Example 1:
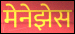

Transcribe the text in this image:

मेनेझेस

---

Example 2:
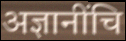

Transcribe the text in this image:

अज्ञानींचि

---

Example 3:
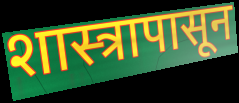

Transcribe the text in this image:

शास्त्रापासून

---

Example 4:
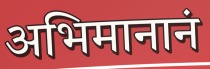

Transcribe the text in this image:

अभिमानानं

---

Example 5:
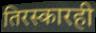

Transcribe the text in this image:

तिरस्कारही